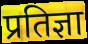
प्रतिज्ञा